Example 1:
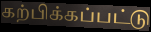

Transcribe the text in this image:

கற்பிக்கப்பட்டு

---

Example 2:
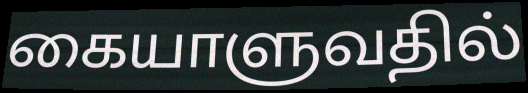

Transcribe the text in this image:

கையாளுவதில்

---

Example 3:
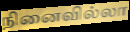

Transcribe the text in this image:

நினைவில்லா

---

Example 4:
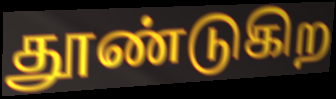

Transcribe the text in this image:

தூண்டுகிற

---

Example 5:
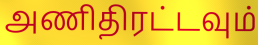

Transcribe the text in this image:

அணிதிரட்டவும்